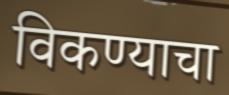
विकण्याचा